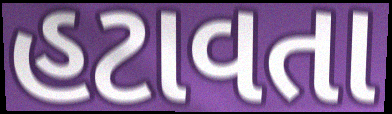
હટાવતા